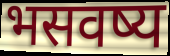
भसवष्य